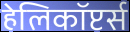
हेलिकॉप्टर्स